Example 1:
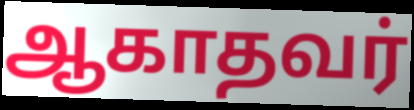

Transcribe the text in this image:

ஆகாதவர்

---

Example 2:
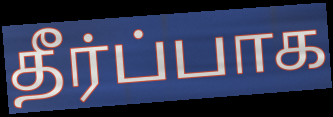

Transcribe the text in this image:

தீர்ப்பாக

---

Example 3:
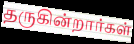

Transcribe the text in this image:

தருகின்றார்கள்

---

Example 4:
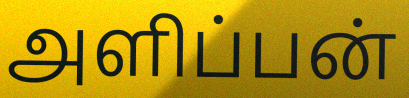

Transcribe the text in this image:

அளிப்பன்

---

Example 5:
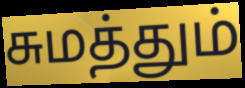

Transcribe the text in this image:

சுமத்தும்